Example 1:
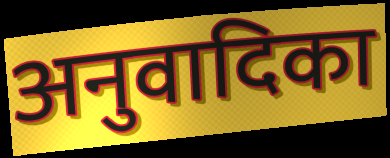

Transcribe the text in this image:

अनुवादिका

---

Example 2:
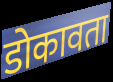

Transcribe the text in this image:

डोकावता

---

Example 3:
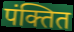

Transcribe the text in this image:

पंक्तित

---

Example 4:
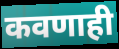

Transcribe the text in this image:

कवणाही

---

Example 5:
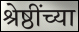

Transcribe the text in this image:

श्रेष्ठींच्या